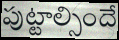
పుట్టాల్సిందే